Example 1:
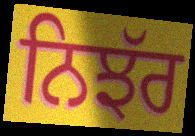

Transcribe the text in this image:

ਨਿਝੱਰ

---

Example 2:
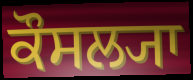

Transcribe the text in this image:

ਕੌਸਲ੍ਯਾ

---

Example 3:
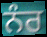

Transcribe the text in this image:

ਨੰਰ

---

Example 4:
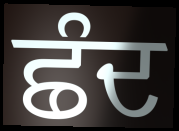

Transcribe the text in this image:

ਛੰਦ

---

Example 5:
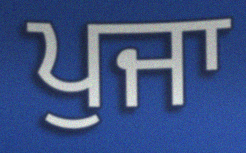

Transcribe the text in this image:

ਪੁਜਾ